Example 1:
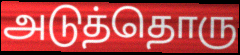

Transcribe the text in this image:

அடுத்தொரு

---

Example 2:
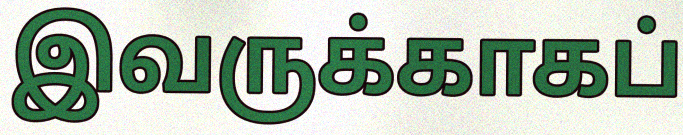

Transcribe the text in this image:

இவருக்காகப்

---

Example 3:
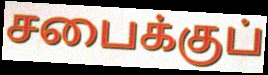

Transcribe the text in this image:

சபைக்குப்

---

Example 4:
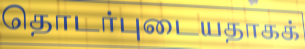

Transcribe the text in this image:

தொடர்புடையதாகக்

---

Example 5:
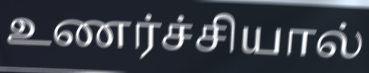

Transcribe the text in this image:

உணர்ச்சியால்